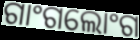
ଗାଂଗଲୋଂଗ